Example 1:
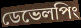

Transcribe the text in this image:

ডেভেলপিং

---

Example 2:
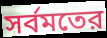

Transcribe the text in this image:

সর্বমতের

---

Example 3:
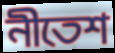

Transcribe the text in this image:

নীতেশ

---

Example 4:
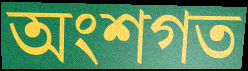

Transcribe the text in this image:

অংশগত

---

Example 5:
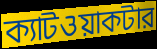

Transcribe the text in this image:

ক্যাটওয়াকটার